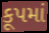
કૂપમાં